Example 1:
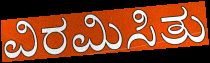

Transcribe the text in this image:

ವಿರಮಿಸಿತು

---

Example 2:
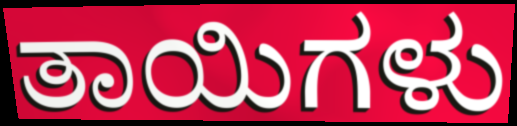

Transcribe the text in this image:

ತಾಯಿಗಳು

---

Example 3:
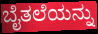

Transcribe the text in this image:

ಬೈತಲೆಯನ್ನು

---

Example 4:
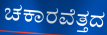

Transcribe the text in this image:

ಚಕಾರವೆತ್ತದ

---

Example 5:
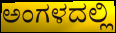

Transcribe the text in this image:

ಅಂಗಳದಲ್ಲಿ